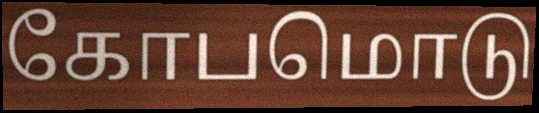
கோபமொடு